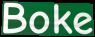
Boke